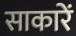
साकारें